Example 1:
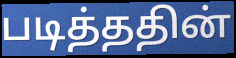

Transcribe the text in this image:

படித்ததின்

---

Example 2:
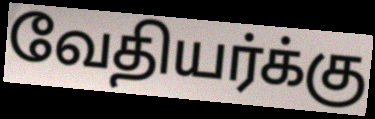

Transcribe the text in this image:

வேதியர்க்கு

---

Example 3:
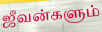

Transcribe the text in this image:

ஜீவன்களும்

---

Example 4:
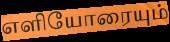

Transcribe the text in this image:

எளியோரையும்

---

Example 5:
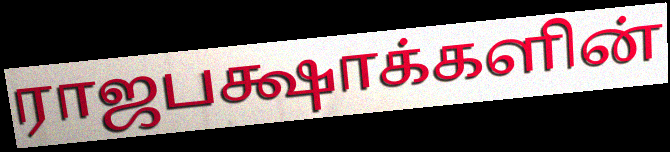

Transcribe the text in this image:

ராஜபக்ஷாக்களின்